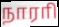
நாரரி